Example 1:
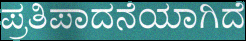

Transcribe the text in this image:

ಪ್ರತಿಪಾದನೆಯಾಗಿದೆ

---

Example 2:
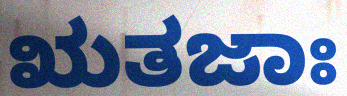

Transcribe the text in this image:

ಋತಜಾಃ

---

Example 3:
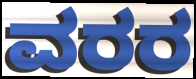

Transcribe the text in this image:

ವರರ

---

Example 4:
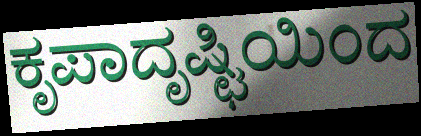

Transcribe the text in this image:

ಕೃಪಾದೃಷ್ಟಿಯಿಂದ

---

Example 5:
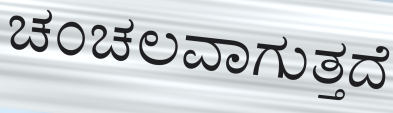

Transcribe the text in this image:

ಚಂಚಲವಾಗುತ್ತದೆ